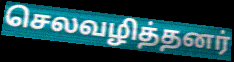
செலவழித்தனர்